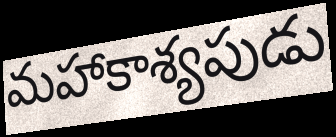
మహాకాశ్యపుడు